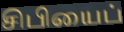
சிபியைப்